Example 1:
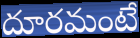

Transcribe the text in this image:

దూరమంటే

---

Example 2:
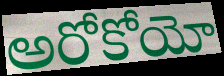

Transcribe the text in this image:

అరోకోయో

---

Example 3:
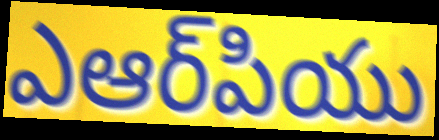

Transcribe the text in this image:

ఎఆర్‌పియు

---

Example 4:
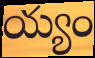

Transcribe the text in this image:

య్యం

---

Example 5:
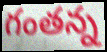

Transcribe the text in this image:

గంతన్న